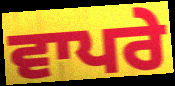
ਵਾਪਰੇ